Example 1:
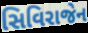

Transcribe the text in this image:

સિવિરાજેન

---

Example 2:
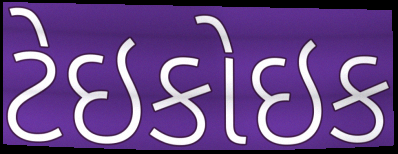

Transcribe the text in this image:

ટેઇકોઇક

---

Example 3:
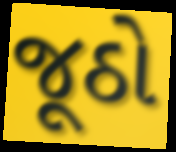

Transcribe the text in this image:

જૂઠો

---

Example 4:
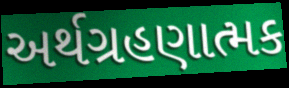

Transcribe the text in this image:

અર્થગ્રહણાત્મક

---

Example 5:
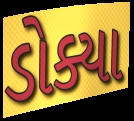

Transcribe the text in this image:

ડોક્યા